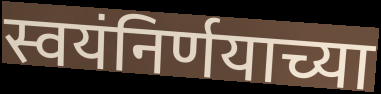
स्वयंनिर्णयाच्या